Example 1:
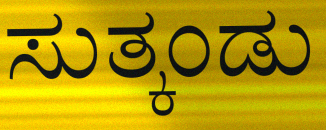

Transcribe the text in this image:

ಸುತ್ಕಂಡು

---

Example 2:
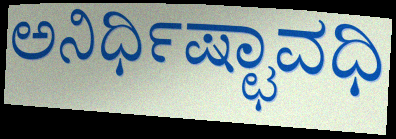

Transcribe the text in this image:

ಅನಿರ್ಧಿಷ್ಟಾವಧಿ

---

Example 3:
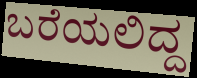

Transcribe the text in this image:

ಬರೆಯಲಿದ್ದ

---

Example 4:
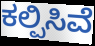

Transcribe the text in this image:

ಕಲ್ಪಿಸಿವೆ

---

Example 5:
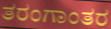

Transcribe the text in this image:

ತರಂಗಾಂತರ